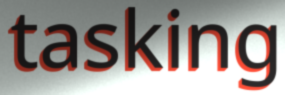
tasking